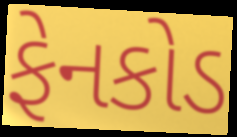
ફેનકોડ